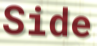
Side